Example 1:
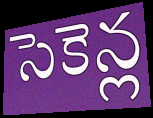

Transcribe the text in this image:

సెకెన్ల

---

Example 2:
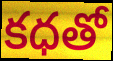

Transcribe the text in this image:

కధతో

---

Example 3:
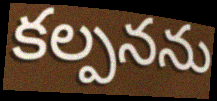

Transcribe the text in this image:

కల్పనను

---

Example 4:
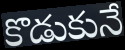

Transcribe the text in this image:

కొడుకునే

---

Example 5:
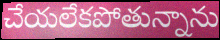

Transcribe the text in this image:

చేయలేకపోతున్నాను